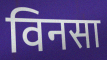
विनसा